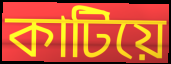
কাটিয়ে